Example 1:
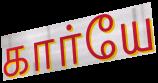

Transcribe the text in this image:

கார்யே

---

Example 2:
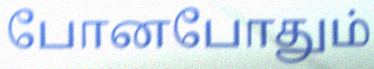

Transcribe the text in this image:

போனபோதும்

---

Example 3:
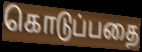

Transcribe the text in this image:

கொடுப்பதை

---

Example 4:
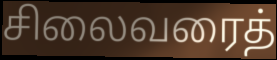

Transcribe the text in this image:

சிலைவரைத்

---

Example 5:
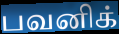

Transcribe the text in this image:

பவனிக்